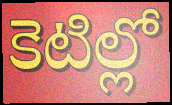
కెటిల్లో